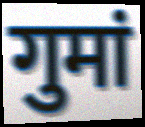
गुमां